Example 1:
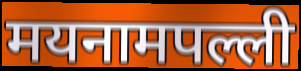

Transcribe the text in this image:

मयनामपल्ली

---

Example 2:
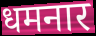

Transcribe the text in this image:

धमनार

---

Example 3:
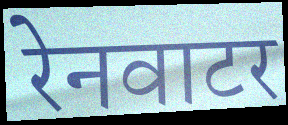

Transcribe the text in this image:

रेनवाटर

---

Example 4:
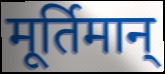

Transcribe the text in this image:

मूर्तिमान्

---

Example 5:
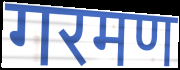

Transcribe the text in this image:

गरमण